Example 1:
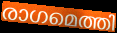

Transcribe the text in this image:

രാഗമെത്തി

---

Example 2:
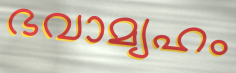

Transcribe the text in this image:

ഭവാമ്യഹം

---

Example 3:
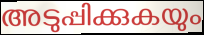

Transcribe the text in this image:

അടുപ്പിക്കുകയും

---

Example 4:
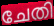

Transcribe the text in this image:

ചേതി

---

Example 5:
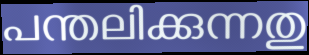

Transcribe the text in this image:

പന്തലിക്കുന്നതു